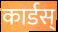
कार्डस्